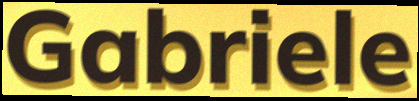
Gabriele